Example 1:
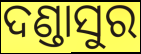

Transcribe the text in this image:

ଦଣ୍ଡାସୁର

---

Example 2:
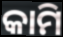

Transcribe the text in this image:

କାମି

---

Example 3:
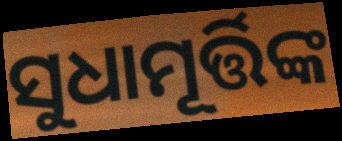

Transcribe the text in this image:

ସୁଧାମୂର୍ତ୍ତିଙ୍କ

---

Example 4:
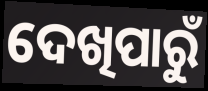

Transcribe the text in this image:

ଦେଖିପାରୁଁ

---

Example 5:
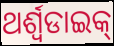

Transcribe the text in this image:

ଥର୍ଶ୍ଵଡାଇକ୍